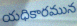
యధికారమున